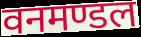
वनमण्डल